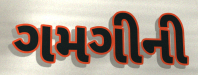
ગમગીની